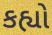
કહ્યો